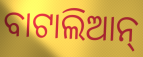
ବାଟାଲିଆନ୍